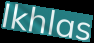
Ikhlas